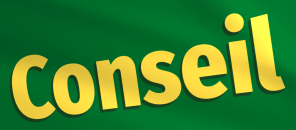
Conseil